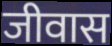
जीवास